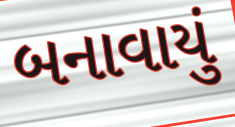
બનાવાયું